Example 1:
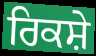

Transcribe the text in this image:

ਰਿਕਸ਼ੇ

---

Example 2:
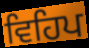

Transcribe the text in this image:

ਵਿਹਿਪ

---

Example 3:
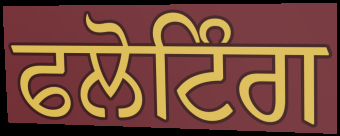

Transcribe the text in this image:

ਫਲੋਟਿੰਗ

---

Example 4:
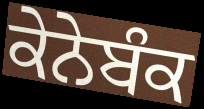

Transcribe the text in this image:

ਕੇਨੇਬੰਕ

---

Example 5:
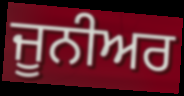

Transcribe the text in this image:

ਜੂਨੀਅਰ